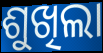
ଶୁଖିଲା